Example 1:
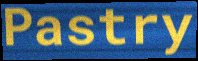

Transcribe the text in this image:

Pastry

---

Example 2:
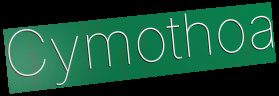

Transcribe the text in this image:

Cymothoa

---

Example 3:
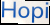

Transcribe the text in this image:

Hopi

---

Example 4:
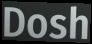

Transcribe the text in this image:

Dosh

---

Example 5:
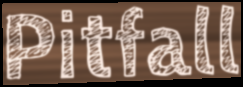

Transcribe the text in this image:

Pitfall